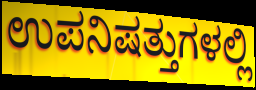
ಉಪನಿಷತ್ತುಗಳಲ್ಲಿ